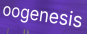
oogenesis